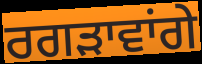
ਰਗੜਾਵਾਂਗੇ